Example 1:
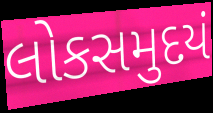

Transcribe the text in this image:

લોકસમુદયં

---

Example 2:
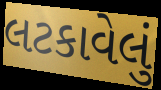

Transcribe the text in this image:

લટકાવેલું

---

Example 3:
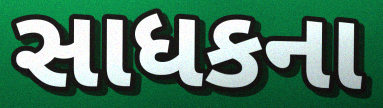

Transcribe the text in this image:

સાધકના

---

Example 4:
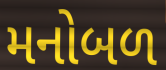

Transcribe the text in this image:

મનોબળ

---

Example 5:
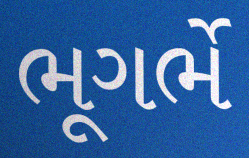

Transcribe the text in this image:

ભૂગર્ભે